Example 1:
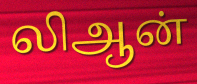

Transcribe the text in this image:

லிஆன்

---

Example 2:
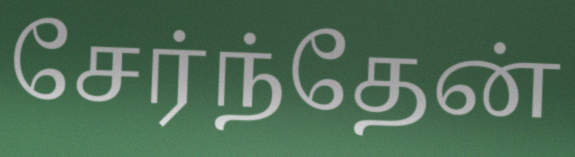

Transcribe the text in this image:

சேர்ந்தேன்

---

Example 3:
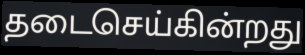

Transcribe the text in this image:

தடைசெய்கின்றது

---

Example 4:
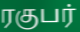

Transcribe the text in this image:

ரகுபர்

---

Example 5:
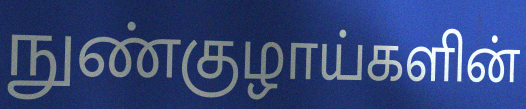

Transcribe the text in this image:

நுண்குழாய்களின்